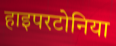
हाइपरटोनिया